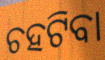
ଚହଟିବା